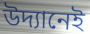
উদ্যানেই